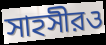
সাহসীরও